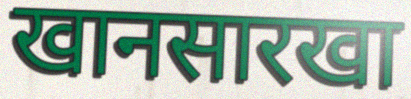
खानसारखा